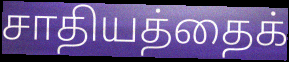
சாதியத்தைக்